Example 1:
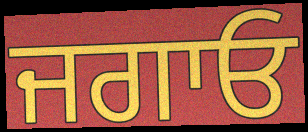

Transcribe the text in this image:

ਜਗਾਓ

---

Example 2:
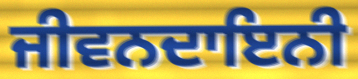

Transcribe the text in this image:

ਜੀਵਨਦਾਇਨੀ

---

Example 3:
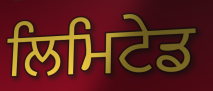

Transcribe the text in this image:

ਲਿਮਿਟੇਡ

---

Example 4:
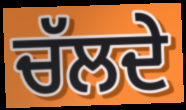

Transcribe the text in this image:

ਚੱਲਦੇ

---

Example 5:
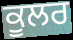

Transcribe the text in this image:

ਕੂਲਰ